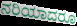
ನರಿಯಾದರೂ